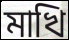
মাখি